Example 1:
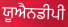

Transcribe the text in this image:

ਯੂਐਨਡੀਪੀ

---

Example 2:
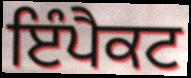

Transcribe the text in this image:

ਇੰਪੈਕਟ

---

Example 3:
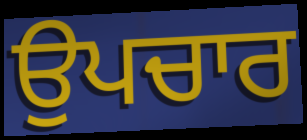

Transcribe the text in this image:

ਉਪਚਾਰ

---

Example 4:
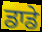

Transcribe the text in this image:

ਡਾਡੇ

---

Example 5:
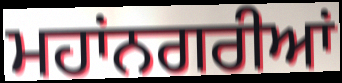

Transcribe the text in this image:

ਮਹਾਂਨਗਰੀਆਂ